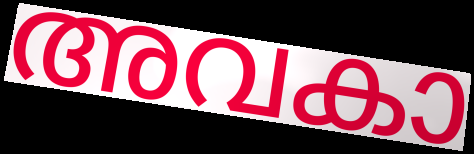
അവകാ